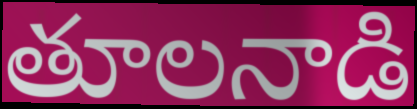
తూలనాడి